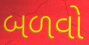
બળવો